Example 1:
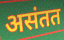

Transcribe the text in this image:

असंतत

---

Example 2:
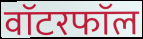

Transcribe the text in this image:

वॉटरफॉल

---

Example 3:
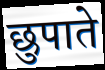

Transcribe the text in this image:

छुपाते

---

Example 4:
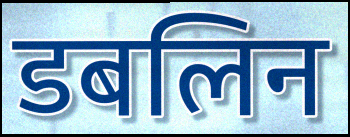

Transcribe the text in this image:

डबलिन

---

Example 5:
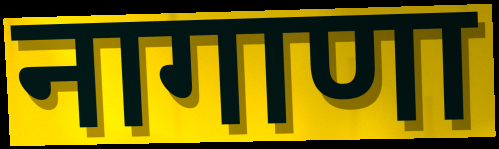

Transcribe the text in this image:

नागाणा